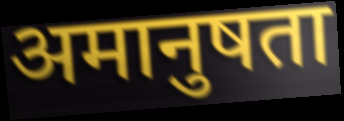
अमानुषता